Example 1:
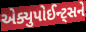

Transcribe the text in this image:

એક્યુપોઈન્ટ્સને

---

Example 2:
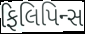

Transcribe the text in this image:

ફિલિપિન્સ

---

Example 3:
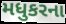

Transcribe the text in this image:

મધુકરના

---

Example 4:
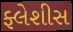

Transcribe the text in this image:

ફ્લેશીસ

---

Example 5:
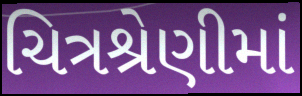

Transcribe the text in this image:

ચિત્રશ્રેણીમાં